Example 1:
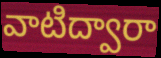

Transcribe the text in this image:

వాటిద్వారా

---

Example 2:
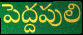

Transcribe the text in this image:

పెద్దపులి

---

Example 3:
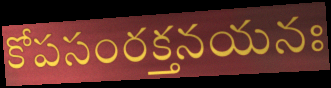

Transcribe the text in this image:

కోపసంరక్తనయనః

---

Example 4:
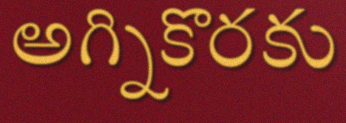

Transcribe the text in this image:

అగ్నికొరకు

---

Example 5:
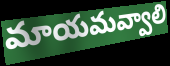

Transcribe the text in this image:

మాయమవ్వాలి